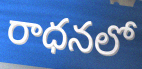
రాధనలో